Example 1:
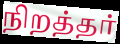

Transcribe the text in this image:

நிறத்தர்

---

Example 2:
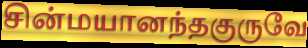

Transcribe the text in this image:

சின்மயானந்தகுருவே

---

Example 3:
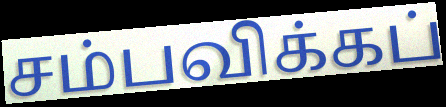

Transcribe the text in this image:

சம்பவிக்கப்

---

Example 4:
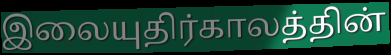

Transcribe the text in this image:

இலையுதிர்காலத்தின்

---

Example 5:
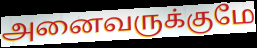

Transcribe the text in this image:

அனைவருக்குமே